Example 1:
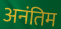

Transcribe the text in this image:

अनंतिम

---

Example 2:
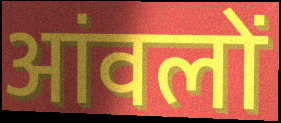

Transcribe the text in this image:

आंवलों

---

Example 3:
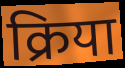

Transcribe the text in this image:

क्रिया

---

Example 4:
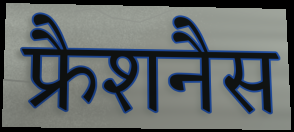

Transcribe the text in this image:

फ्रैशनैस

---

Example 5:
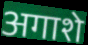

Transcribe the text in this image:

अगाशे